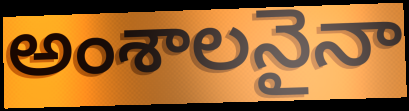
అంశాలనైనా